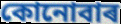
কোনোবাৰ